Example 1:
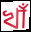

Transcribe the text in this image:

খাঁ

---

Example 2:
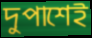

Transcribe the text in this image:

দুপাশেই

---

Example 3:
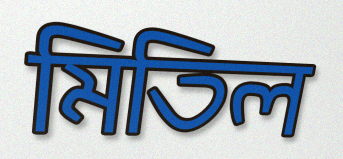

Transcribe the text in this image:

মিতিল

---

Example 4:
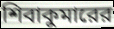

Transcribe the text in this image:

শিবাকুমারের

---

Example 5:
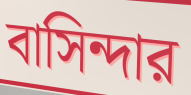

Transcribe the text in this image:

বাসিন্দার